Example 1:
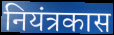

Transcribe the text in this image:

नियंत्रकास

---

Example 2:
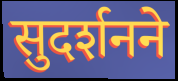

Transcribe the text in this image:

सुदर्शनने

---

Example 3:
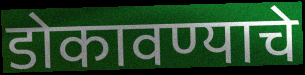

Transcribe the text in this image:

डोकावण्याचे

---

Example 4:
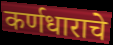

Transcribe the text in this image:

कर्णधाराचे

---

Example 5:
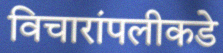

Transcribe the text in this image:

विचारांपलीकडे